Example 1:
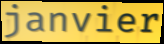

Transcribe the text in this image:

janvier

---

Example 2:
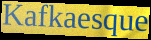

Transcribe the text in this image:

Kafkaesque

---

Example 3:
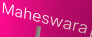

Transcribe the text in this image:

Maheswara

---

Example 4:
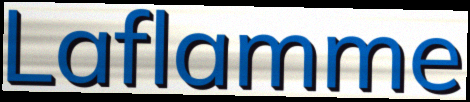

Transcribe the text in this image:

Laflamme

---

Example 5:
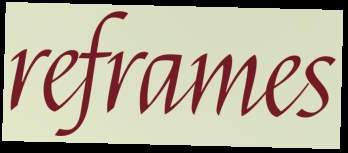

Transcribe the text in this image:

reframes